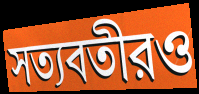
সত্যবতীরও